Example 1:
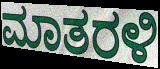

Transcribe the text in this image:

ಮಾತರಳಿ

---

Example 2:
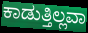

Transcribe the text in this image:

ಕಾಡುತ್ತಿಲ್ಲವಾ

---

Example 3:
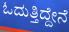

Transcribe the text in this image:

ಓದುತ್ತಿದ್ದೇನೆ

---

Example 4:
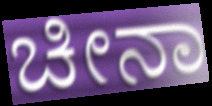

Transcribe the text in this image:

ಚೀನಾ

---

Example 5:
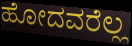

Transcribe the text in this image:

ಹೋದವರೆಲ್ಲ